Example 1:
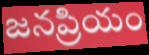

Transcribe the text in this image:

జనప్రియం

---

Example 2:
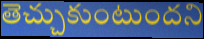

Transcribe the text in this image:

తెచ్చుకుంటుందని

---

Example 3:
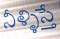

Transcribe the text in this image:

నీళ్ళిస్తే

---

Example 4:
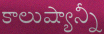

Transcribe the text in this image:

కాలుష్యాన్నీ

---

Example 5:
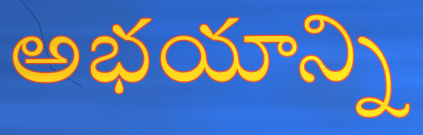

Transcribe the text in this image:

అభయాన్ని